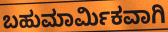
ಬಹುಮಾರ್ಮಿಕವಾಗಿ